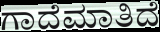
ಗಾದೆಮಾತಿದೆ